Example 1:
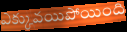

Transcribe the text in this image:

ఎక్కువయిపోయింది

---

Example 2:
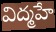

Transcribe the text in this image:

విద్మహే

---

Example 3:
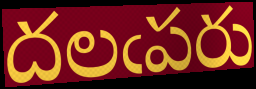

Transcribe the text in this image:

దలఁపరు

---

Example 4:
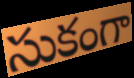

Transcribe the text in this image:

సుకంగా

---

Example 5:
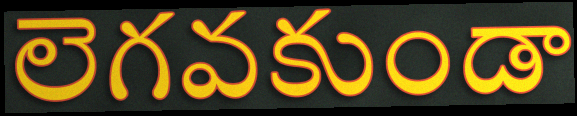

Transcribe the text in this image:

లెగవకుండా